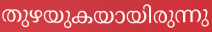
തുഴയുകയായിരുന്നു